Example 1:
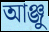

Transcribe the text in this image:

আঞ্জু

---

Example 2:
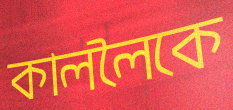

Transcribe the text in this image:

কাললৈকে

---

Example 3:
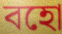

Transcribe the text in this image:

বহো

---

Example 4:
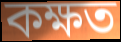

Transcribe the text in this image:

কক্ষত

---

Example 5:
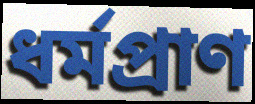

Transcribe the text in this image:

ধৰ্মপ্ৰাণ